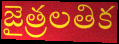
జైత్రలతిక